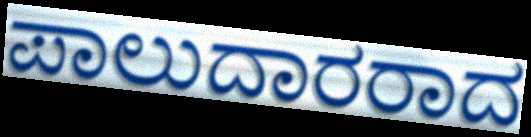
ಪಾಲುದಾರರಾದ